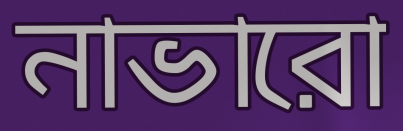
নাভারো